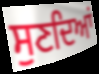
ਸੁਣਦਿਆਂ